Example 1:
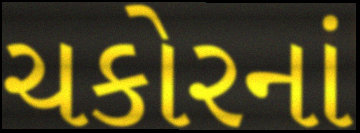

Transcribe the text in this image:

ચકોરનાં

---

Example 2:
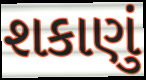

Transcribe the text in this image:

શકાણું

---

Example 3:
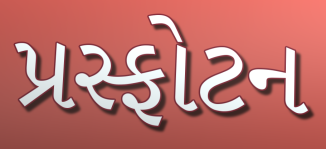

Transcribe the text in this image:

પ્રસ્ફોટન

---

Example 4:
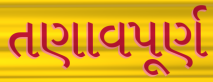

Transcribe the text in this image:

તણાવપૂર્ણ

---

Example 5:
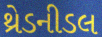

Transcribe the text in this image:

થ્રેડનીડલ